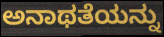
ಅನಾಥತೆಯನ್ನು